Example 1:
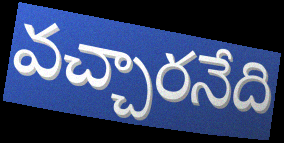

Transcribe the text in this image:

వచ్చారనేది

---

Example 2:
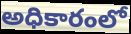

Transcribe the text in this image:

అధికారంలో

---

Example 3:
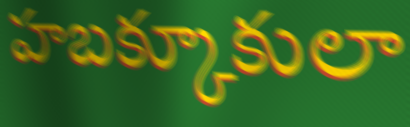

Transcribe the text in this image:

హబక్కూకులా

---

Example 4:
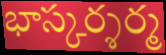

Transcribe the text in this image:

భాస్కర్శర్మ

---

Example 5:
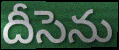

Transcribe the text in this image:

దీసెను